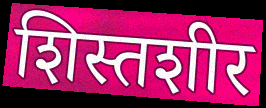
शिस्तशीर